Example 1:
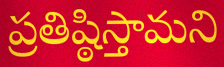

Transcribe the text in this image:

ప్రతిష్ఠిస్తామని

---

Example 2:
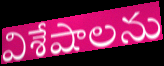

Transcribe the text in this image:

విశేషాలను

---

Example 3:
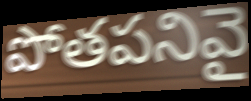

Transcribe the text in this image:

పోతపనివై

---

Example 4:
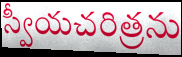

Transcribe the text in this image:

స్వీయచరిత్రను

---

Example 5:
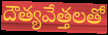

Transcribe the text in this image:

దౌత్యవేత్తలతో